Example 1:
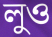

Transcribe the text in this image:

লুও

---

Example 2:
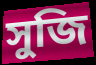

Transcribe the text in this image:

সুজি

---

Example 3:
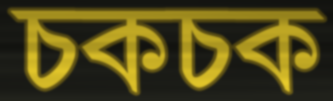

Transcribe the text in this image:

চকচক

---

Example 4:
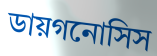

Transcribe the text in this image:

ডায়গনোসিস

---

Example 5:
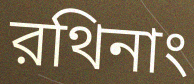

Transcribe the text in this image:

রথিনাং